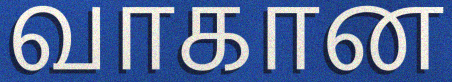
வாகான